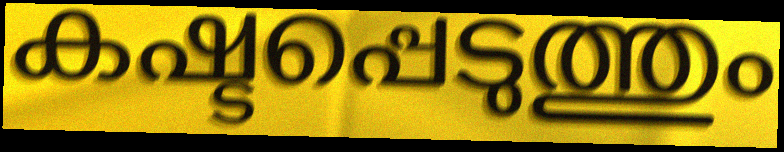
കഷ്ടപ്പെടുത്തും